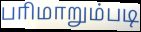
பரிமாறும்படி